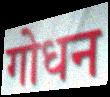
गोधन